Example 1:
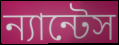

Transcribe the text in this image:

ন্যান্টেস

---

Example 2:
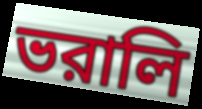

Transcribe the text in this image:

ভরালি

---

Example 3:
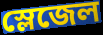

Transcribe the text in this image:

স্লেজেল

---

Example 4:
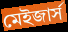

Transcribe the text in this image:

মেইজার্স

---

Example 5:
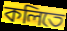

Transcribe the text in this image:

কলিতে